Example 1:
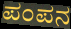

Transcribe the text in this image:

ಪಂಪನ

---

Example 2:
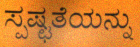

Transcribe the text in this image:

ಸ್ಪಷ್ಟತೆಯನ್ನು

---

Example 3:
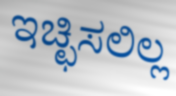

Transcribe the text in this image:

ಇಚ್ಛಿಸಲಿಲ್ಲ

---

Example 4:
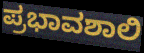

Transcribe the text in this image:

ಪ್ರಭಾವಶಾಲಿ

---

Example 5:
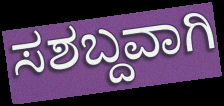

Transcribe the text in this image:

ಸಶಬ್ದವಾಗಿ